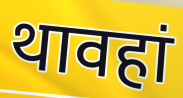
थावहां